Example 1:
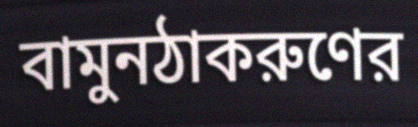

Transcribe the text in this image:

বামুনঠাকরুণের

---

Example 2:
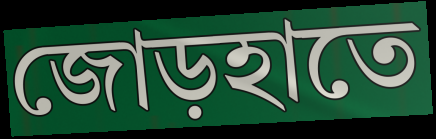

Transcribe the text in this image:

জোড়হাতে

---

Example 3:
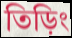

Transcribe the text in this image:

তিড়িং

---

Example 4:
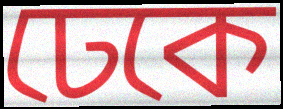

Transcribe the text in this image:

ঢেকে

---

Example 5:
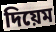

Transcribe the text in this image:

দিয়েম